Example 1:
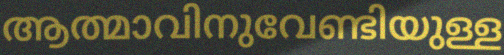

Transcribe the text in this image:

ആത്മാവിനുവേണ്ടിയുള്ള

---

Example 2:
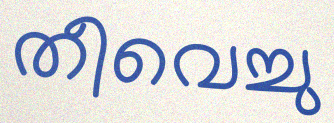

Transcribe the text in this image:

തീവെച്ചു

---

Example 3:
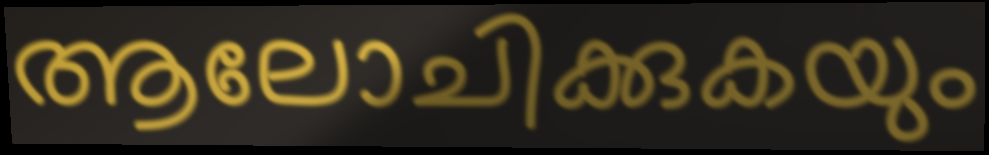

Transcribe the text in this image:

ആലോചിക്കുകയും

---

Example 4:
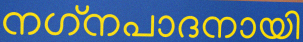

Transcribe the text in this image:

നഗ്‌നപാദനായി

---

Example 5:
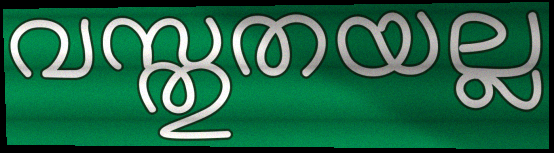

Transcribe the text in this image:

വസ്തുതയല്ല